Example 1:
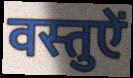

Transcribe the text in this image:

वस्तुऐं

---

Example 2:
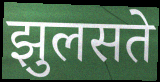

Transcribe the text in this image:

झुलसते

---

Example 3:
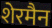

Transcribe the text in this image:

शेरमैन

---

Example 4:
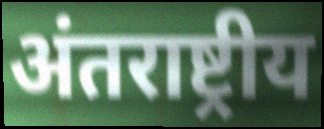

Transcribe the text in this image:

अंतराष्ट्रीय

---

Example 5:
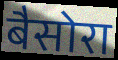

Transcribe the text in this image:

बैसोरा